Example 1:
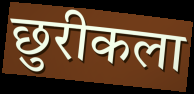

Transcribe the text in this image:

छुरीकला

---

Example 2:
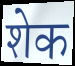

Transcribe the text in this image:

शेक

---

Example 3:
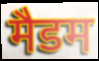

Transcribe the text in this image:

मैडम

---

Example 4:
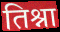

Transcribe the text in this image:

तिश्ना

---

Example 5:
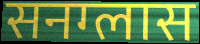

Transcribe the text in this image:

सनग्लास